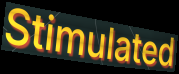
Stimulated